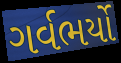
ગર્વભર્યો